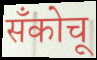
सँकोचू